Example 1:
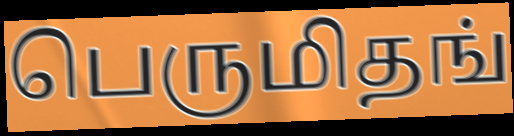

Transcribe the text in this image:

பெருமிதங்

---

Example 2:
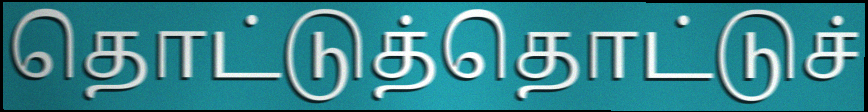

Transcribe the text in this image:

தொட்டுத்தொட்டுச்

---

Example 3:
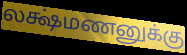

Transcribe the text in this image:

லக்ஷ்மணனுக்கு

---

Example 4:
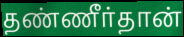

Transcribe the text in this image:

தண்ணீர்தான்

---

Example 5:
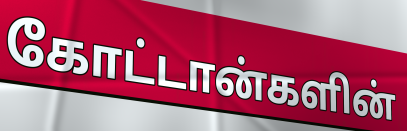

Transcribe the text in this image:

கோட்டான்களின்